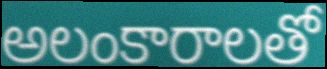
అలంకారాలతో